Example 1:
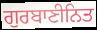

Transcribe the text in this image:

ਗੁਰਬਾਣੀਨਿਤ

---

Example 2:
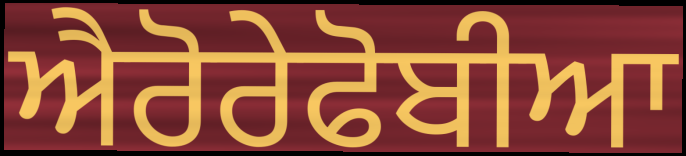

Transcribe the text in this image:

ਐਰੋਰੇਫੋਬੀਆ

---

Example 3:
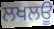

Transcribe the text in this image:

ਲਖਲਊ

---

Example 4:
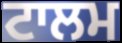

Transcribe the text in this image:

ਟਾਲਮ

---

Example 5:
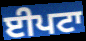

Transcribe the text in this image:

ਈਪਟਾ